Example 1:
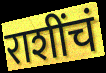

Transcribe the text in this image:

राशींचं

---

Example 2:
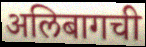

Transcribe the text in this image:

अलिबागची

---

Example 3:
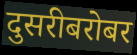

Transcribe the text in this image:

दुसरीबरोबर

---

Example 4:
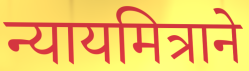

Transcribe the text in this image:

न्यायमित्राने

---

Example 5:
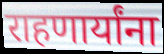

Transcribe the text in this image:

राहणार्यांना